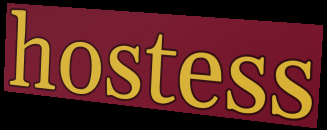
hostess